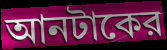
আনটাকের